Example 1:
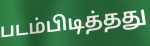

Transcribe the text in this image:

படம்பிடித்தது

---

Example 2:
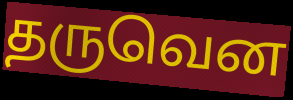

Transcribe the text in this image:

தருவென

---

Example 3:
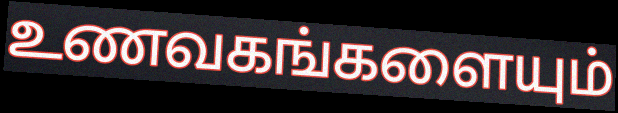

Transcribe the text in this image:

உணவகங்களையும்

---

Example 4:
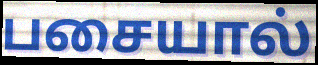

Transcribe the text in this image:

பசையால்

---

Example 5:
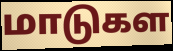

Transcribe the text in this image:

மாடுகள